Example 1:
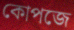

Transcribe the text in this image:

কোপজে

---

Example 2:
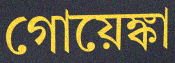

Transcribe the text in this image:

গোয়েঙ্কা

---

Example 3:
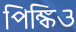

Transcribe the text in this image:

পিঙ্কিও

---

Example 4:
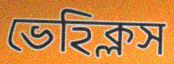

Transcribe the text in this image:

ভেহিক্লস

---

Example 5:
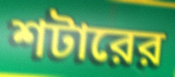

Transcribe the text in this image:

শটারের